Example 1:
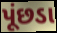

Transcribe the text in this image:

પૂંછડા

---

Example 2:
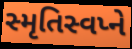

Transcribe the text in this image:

સ્મૃતિસ્વપ્ને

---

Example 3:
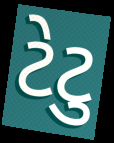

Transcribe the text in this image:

ટેટુ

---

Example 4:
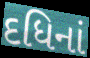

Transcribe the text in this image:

દધિનાં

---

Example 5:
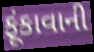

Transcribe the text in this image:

ફૂંકાવાની